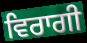
ਵਿਰਾਗੀ